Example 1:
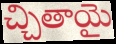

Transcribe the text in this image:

చ్చితాయై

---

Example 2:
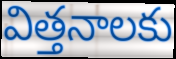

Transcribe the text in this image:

విత్తనాలకు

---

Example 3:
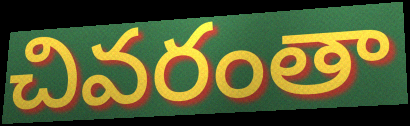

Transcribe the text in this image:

చివరంతా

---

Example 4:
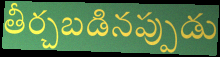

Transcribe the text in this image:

తీర్చబడినప్పుడు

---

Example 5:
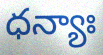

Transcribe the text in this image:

ధన్యాః